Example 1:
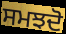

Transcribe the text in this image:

ਸਮਝਦੋ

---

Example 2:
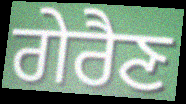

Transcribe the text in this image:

ਗੇਰੈਣ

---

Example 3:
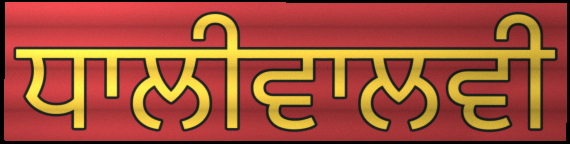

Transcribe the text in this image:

ਧਾਲੀਵਾਲਵੀ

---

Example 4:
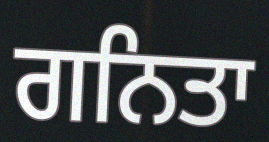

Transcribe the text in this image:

ਗਨਿਤਾ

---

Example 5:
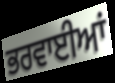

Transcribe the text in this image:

ਭਰਵਾਈਆਂ